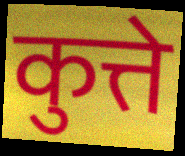
कुत्ते